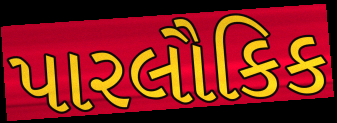
પારલૌકિક